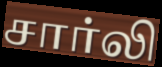
சார்லி